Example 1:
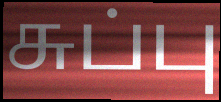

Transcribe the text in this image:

சுப்பு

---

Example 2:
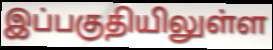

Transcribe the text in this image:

இப்பகுதியிலுள்ள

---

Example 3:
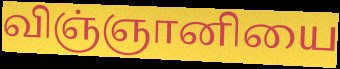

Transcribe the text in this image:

விஞ்ஞானியை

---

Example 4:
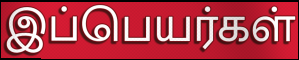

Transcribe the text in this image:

இப்பெயர்கள்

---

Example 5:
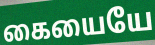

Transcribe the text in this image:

கையையே